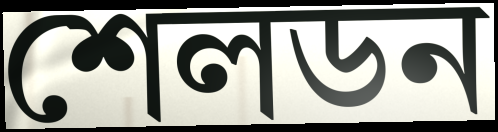
শেলডন